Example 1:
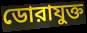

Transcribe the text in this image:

ডোরাযুক্ত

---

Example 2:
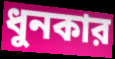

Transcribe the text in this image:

ধুনকার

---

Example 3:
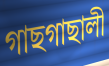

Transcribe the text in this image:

গাছগাছালী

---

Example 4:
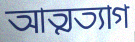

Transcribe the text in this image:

আত্মত্যাগ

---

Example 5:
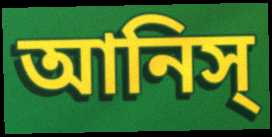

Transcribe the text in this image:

আনিস্